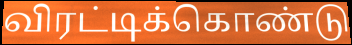
விரட்டிக்கொண்டு